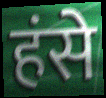
हंसे